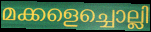
മക്കളെച്ചൊല്ലി